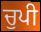
ਚੁਪੀ